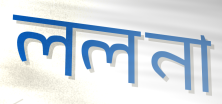
ললনা